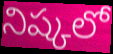
నిష్కలో